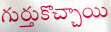
గుర్తుకొచ్చాయి